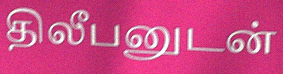
திலீபனுடன்